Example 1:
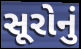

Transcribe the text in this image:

સૂરોનું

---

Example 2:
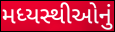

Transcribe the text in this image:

મધ્યસ્થીઓનું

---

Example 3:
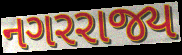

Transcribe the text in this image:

નગરરાજ્ય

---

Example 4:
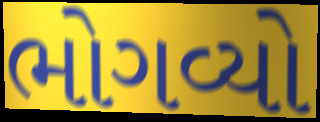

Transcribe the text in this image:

ભોગવ્યો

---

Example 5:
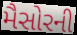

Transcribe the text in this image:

મૈસોરની